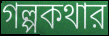
গল্পকথার